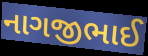
નાગજીભાઈ